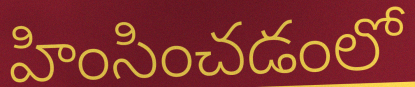
హింసించడంలో